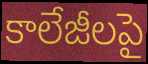
కాలేజీలపై